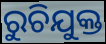
ରୁଚିଯୁକ୍ତ